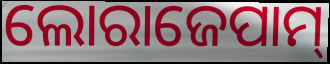
ଲୋରାଜେପାମ୍